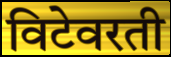
विटेवरती